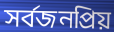
সর্বজনপ্রিয়